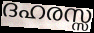
ദഹരസ്സ